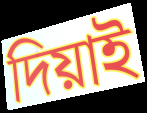
দিয়াই